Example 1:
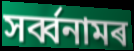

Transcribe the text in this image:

সৰ্ব্বনামৰ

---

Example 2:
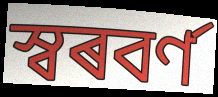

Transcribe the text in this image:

স্বৰবৰ্ণ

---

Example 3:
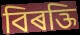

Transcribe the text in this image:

বিৰক্তি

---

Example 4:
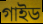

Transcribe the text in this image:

গাইড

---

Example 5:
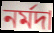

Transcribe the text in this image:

নৰ্মদা